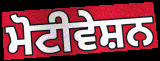
ਮੋਟੀਵੇਸ਼ਨ